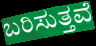
ಬರಿಸುತ್ತವೆ